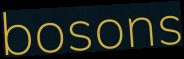
bosons